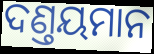
ଦଣ୍ତୟମାନ